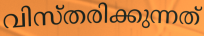
വിസ്തരിക്കുന്നത്